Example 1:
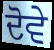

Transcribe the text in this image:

ਦੋਵੇ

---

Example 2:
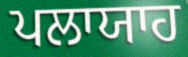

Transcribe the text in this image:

ਪਲਾਯਾਹ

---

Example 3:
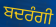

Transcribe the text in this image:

ਬਦਰੰਗੀ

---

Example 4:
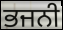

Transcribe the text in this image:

ਭਜਨੀ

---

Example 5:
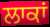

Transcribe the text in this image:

ਲਾਕਾਂ